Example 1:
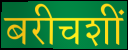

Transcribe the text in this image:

बरीचशीं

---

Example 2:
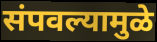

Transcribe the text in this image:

संपवल्यामुळे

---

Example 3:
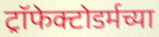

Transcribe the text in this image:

ट्रॉफेक्टोडर्मच्या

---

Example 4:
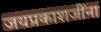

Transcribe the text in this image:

जयप्रकाशजींना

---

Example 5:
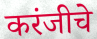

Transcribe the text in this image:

करंजीचे